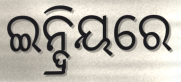
ଇନ୍ଦ୍ରିୟରେ